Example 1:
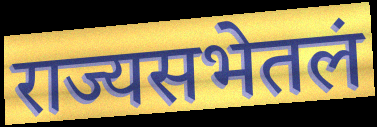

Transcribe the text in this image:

राज्यसभेतलं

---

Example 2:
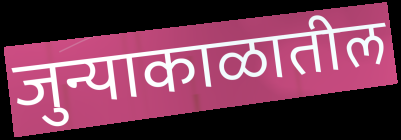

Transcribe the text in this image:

जुन्याकाळातील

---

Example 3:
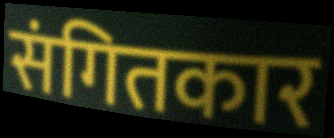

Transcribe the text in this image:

संगितकार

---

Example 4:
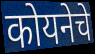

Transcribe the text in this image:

कोयनेचे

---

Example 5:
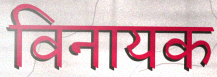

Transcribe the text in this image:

विनायक